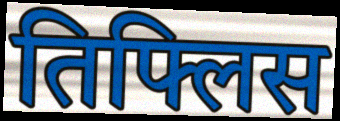
तिफ्लिस